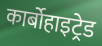
कार्बोहाइट्रेड